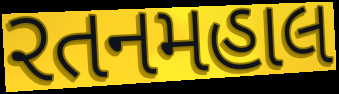
રતનમહાલ